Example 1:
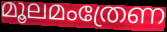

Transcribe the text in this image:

മൂലമംത്രേണ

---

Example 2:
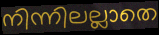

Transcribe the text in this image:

നിന്നിലല്ലാതെ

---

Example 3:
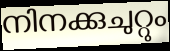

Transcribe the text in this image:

നിനക്കുചുറ്റും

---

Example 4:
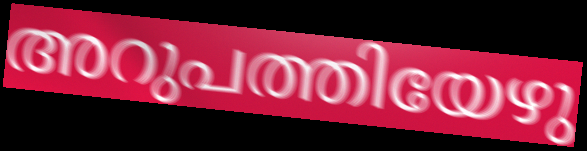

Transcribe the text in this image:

അറുപത്തിയേഴു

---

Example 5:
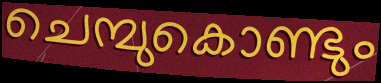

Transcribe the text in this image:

ചെമ്പുകൊണ്ടും